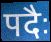
पदैः